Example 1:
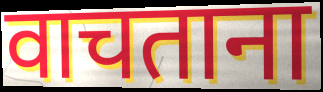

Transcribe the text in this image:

वाचताना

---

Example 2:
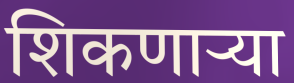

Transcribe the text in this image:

शिकणार्‍या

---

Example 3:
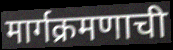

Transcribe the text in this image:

मार्गक्रमणाची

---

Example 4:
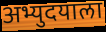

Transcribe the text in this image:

अभ्युदयाला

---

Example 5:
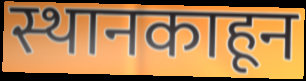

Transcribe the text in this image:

स्थानकाहून